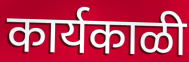
कार्यकाळी